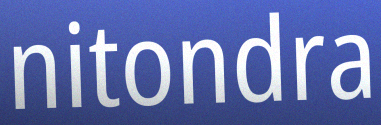
nitondra